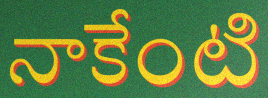
నాకేంటి